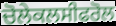
ਚੋਲੇਕਲਸੀਫਰੋਲ